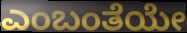
ಎಂಬಂತೆಯೇ